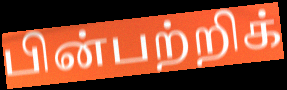
பின்பற்றிக்